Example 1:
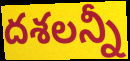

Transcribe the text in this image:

దశలన్నీ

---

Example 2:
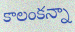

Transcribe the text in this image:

కాలంకన్నా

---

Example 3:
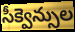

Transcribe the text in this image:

సీక్వెన్సుల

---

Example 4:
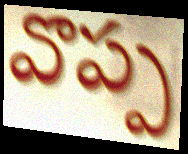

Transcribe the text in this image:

వొప్ప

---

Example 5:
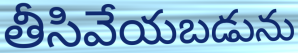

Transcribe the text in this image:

తీసివేయబడును